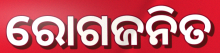
ରୋଗଜନିତ